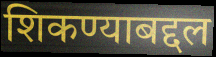
शिकण्याबद्दल